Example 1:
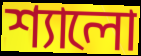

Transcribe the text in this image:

শ্যালো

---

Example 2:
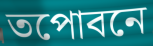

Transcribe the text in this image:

তপোবনে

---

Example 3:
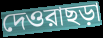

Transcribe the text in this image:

দেওরাছড়া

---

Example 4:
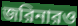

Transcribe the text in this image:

জরিনারও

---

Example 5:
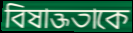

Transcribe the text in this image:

বিষাক্ততাকে